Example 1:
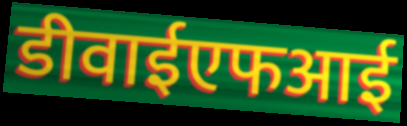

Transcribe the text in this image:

डीवाईएफआई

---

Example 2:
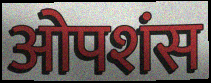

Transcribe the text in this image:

ओपशंस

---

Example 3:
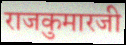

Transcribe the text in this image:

राजकुमारजी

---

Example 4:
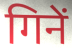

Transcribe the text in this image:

गिनें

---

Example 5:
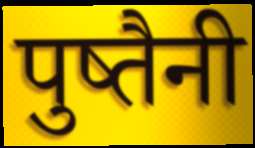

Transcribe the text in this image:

पुष्तैनी